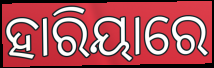
ହାରିୟାରେ